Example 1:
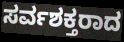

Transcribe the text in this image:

ಸರ್ವಶಕ್ತರಾದ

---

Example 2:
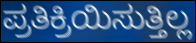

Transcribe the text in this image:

ಪ್ರತಿಕ್ರಿಯಿಸುತ್ತಿಲ್ಲ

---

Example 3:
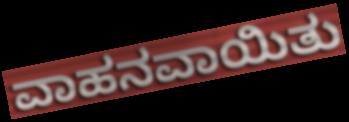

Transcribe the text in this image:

ವಾಹನವಾಯಿತು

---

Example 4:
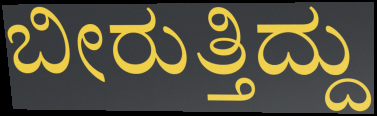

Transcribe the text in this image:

ಬೀರುತ್ತಿದ್ದು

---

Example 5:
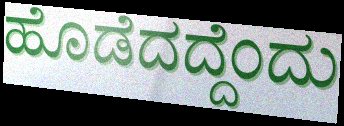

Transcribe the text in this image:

ಹೊಡೆದದ್ದೆಂದು